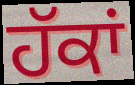
ਹੱਕਾਂ